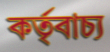
কর্তৃবাচ্য